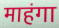
माहंगा